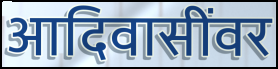
आदिवासींवर